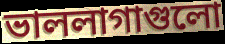
ভাললাগাগুলো